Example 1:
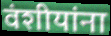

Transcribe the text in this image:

वंशीयांना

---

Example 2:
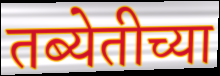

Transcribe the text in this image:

तब्येतीच्या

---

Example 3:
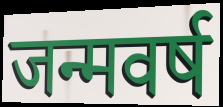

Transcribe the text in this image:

जन्मवर्ष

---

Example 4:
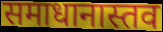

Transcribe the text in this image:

समाधानास्तव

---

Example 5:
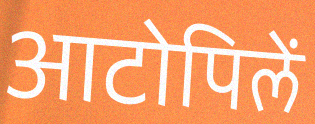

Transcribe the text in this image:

आटोपिलें